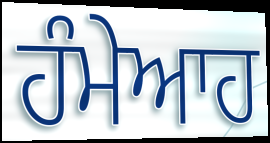
ਹੰਮੇਆਹ